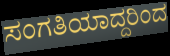
ಸಂಗತಿಯಾದ್ದರಿಂದ